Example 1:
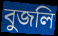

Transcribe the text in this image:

বুজলি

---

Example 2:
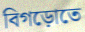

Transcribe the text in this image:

বিগড়োতে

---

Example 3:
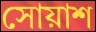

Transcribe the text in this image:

সোয়াশ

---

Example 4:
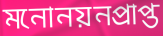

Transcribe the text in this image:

মনোনয়নপ্রাপ্ত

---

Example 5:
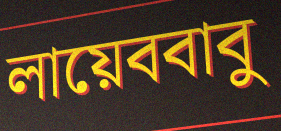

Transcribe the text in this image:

লায়েববাবু